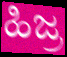
ಹಿಜ್ರ